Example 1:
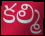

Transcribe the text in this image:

కల్మి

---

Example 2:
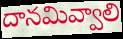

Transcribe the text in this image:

దానమివ్వాలి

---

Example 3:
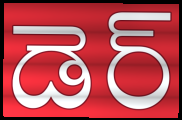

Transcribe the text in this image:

డెర్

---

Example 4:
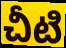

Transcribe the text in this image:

చీటి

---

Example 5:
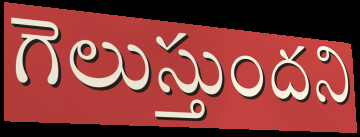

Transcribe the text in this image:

గెలుస్తుందని